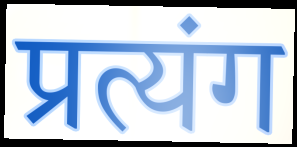
प्रत्यंग